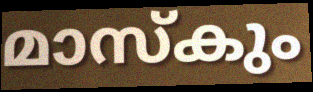
മാസ്കും